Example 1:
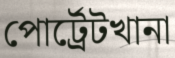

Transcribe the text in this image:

পোর্ট্রেটখানা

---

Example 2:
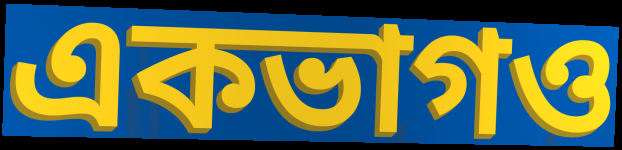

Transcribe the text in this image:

একভাগও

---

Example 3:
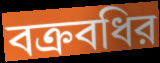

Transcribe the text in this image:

বক্রবধির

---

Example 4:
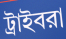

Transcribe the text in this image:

ট্রাইবরা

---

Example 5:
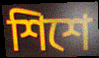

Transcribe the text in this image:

শিশে